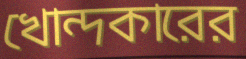
খোন্দকারের